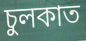
চুলকাত